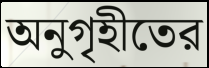
অনুগৃহীতের